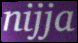
nijja